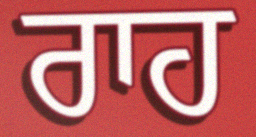
ਰਾਹ